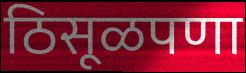
ठिसूळपणा